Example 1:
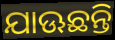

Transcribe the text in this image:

ଯାଊଛନ୍ତି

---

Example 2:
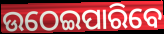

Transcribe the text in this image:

ଉଠେଇପାରିବେ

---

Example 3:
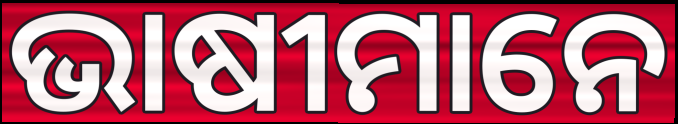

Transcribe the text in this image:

ଭାଷୀମାନେ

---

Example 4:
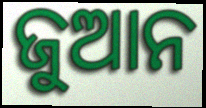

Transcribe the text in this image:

ଜୁଆନ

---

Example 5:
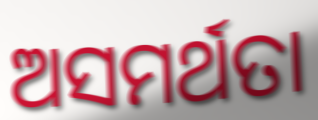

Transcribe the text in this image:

ଅସମର୍ଥତା